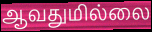
ஆவதுமில்லை